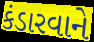
કંડારવાને